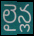
లైన్ల